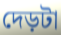
দেড়টা